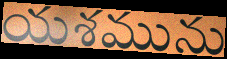
యశమును